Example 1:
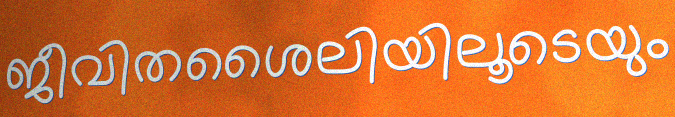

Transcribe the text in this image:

ജീവിതശൈലിയിലൂടെയും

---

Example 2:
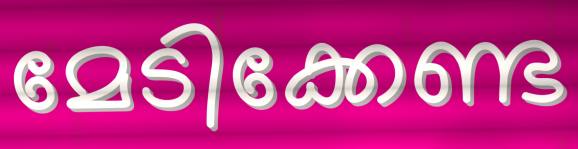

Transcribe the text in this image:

മേടിക്കേണ്ട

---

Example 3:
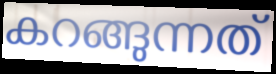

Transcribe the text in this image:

കറങ്ങുന്നത്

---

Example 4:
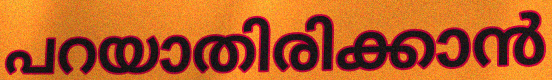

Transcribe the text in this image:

പറയാതിരിക്കാൻ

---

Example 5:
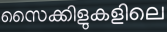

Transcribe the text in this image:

സൈക്കിളുകളിലെ